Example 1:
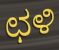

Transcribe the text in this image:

ಛಳಿ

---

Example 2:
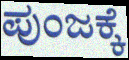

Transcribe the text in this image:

ಪುಂಜಕ್ಕೆ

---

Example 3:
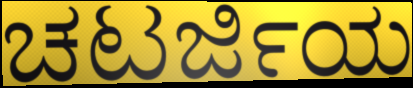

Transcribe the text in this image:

ಚಟರ್ಜಿಯ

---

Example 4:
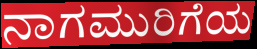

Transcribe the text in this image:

ನಾಗಮುರಿಗೆಯ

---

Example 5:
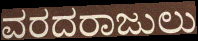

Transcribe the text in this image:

ವರದರಾಜುಲು